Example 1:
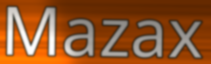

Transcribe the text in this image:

Mazax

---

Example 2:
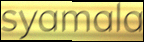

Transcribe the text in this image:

syamala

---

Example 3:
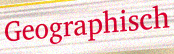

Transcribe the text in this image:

Geographisch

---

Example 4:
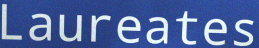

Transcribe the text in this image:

Laureates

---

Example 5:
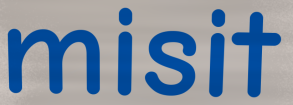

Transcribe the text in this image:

misit